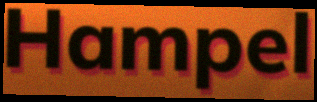
Hampel